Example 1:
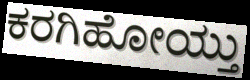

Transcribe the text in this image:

ಕರಗಿಹೋಯ್ತು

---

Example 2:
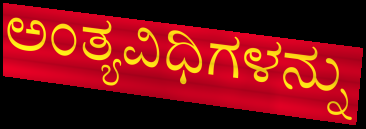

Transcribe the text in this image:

ಅಂತ್ಯವಿಧಿಗಳನ್ನು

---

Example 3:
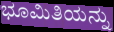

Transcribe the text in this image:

ಭೂಮಿತಿಯನ್ನು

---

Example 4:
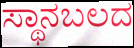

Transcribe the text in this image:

ಸ್ಥಾನಬಲದ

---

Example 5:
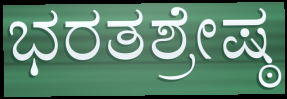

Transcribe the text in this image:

ಭರತಶ್ರೇಷ್ಠ